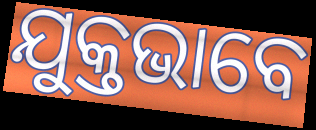
ଯୁକ୍ତଭାବେ